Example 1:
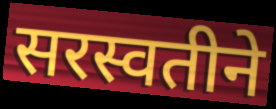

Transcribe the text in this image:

सरस्वतीने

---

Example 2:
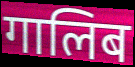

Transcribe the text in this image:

गालिब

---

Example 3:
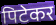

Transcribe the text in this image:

पिटेकर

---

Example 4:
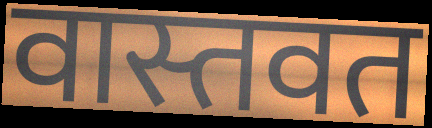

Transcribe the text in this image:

वास्‍तवत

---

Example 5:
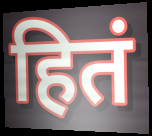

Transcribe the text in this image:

हितं